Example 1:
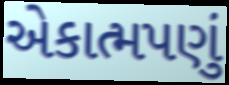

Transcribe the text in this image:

એકાત્મપણું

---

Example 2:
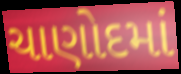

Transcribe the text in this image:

ચાણોદમાં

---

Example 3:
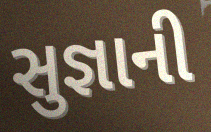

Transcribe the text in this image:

સુજ્ઞાની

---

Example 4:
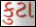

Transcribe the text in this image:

કુટા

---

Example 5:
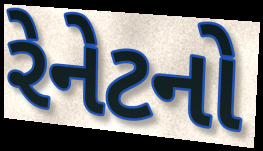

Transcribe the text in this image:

રેનેટનો